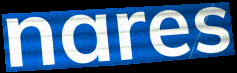
nares